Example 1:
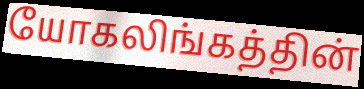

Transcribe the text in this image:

யோகலிங்கத்தின்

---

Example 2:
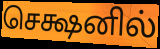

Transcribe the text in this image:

செக்ஷனில்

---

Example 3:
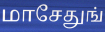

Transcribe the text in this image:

மாசேதுங்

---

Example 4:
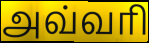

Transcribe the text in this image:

அவ்வரி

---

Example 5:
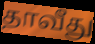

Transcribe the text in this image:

தாவீது